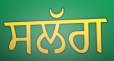
ਸਲੱਗ